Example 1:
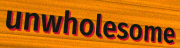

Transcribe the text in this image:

unwholesome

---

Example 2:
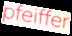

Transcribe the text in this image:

pfeiffer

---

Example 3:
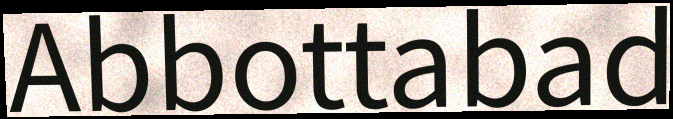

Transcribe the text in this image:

Abbottabad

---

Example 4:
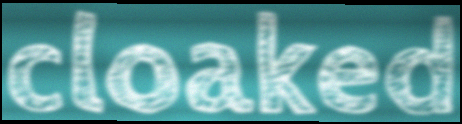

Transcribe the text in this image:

cloaked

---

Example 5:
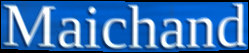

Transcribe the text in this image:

Maichand